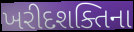
ખરીદશક્તિના